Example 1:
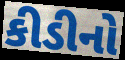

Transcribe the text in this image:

કીડીનો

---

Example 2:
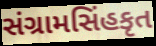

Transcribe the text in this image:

સંગ્રામસિંહકૃત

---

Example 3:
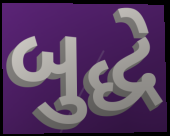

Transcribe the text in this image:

બુદ્ધે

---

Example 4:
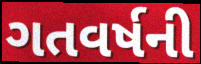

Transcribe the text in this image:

ગતવર્ષની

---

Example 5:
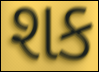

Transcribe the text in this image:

શક